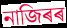
নাজিৰৰ